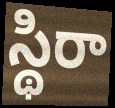
స్థిరా